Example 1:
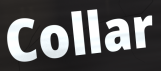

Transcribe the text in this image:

Collar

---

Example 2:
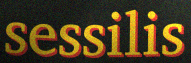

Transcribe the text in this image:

sessilis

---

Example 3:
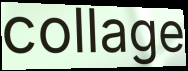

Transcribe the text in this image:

collage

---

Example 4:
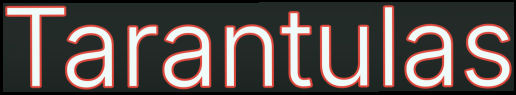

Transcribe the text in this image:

Tarantulas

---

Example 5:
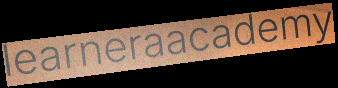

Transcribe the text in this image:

learneraacademy